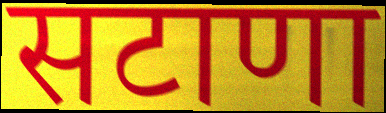
सटाणा